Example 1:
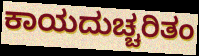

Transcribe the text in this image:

ಕಾಯದುಚ್ಚರಿತಂ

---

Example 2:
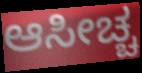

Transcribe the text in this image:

ಆಸೀಚ್ಚ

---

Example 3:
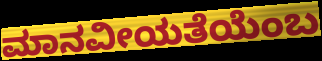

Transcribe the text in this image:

ಮಾನವೀಯತೆಯೆಂಬ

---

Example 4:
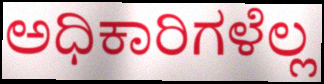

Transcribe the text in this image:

ಅಧಿಕಾರಿಗಳೆಲ್ಲ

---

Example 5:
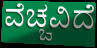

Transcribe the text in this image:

ವೆಚ್ಚವಿದೆ